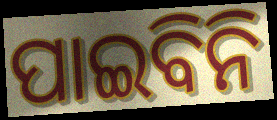
ପାଇବିନି